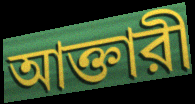
আক্তারী